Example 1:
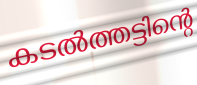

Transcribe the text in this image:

കടൽത്തട്ടിന്റെ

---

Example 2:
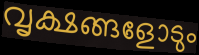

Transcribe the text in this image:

വൃക്ഷങ്ങളോടും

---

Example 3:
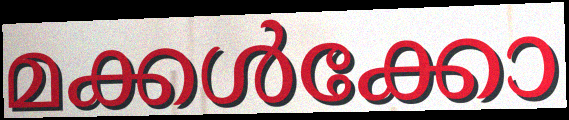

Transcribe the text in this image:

മക്കൾക്കോ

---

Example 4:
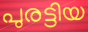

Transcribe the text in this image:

പുരട്ടിയ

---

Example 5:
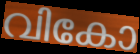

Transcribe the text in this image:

വികോ